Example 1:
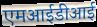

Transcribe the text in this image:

एमआईडीआई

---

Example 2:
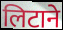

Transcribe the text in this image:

लिटाने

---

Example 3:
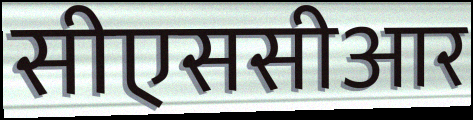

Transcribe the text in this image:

सीएससीआर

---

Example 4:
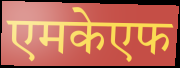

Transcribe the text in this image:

एमकेएफ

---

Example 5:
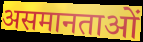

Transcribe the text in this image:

असमानताओं